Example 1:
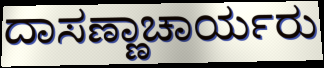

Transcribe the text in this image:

ದಾಸಣ್ಣಾಚಾರ್ಯರು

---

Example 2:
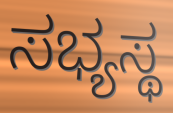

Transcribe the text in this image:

ಸಭ್ಯಸ್ಥ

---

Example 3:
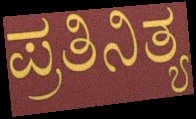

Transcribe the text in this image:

ಪ್ರತಿನಿತ್ಯ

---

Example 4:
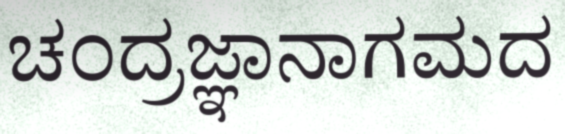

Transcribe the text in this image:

ಚಂದ್ರಜ್ಞಾನಾಗಮದ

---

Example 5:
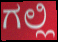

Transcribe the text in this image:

ಗಲ್ಲಿ